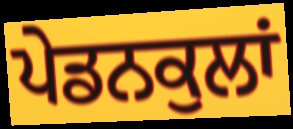
ਪੇਡਨਕੁਲਾਂ